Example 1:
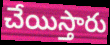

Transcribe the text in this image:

చేయిస్తారు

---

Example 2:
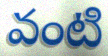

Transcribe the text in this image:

వంటి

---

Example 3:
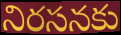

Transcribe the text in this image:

నిరసనకు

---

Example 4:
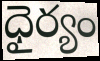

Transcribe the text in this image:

ధైర్యం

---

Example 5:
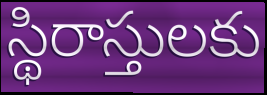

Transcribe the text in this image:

స్థిరాస్తులకు